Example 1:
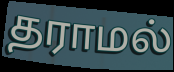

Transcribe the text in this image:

தராமல்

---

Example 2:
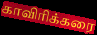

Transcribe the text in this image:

காவிரிக்கரை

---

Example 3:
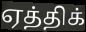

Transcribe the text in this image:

ஏத்திக்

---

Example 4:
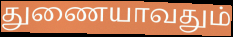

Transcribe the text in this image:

துணையாவதும்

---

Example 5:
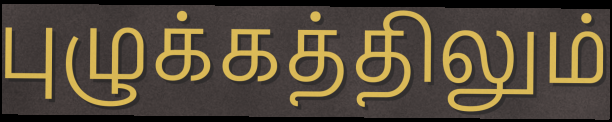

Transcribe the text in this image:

புழுக்கத்திலும்